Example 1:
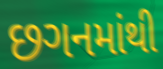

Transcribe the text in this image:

છગનમાંથી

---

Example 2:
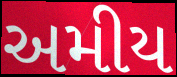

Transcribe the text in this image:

અમીય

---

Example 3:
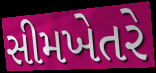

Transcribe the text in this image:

સીમખેતરે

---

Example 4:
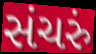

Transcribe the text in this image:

સંચરું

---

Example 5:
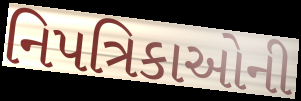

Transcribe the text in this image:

નિપત્રિકાઓની